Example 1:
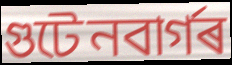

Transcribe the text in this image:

গুটেনবাৰ্গৰ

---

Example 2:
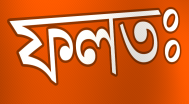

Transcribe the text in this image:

ফলতঃ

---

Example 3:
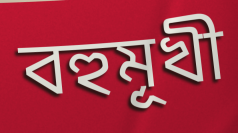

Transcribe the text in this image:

বহুমূখী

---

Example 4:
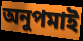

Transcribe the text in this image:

অনুপমাই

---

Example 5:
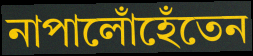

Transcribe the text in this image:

নাপালোঁহেঁতেন